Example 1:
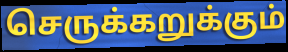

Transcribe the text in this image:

செருக்கறுக்கும்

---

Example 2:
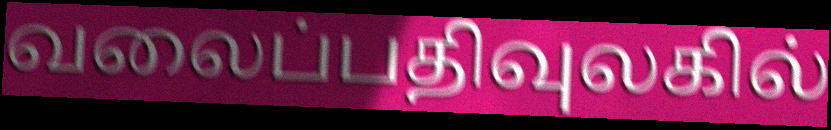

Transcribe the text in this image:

வலைப்பதிவுலகில்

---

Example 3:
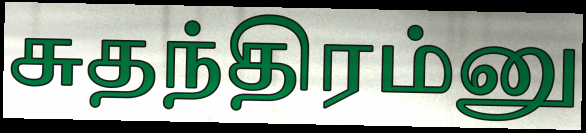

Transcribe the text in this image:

சுதந்திரம்னு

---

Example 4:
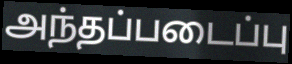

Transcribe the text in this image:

அந்தப்படைப்பு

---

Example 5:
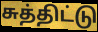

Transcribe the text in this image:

சுத்திட்டு